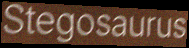
Stegosaurus